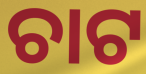
ଚାଟ